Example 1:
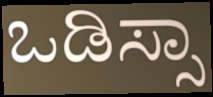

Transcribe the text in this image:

ಒಡಿಸ್ಸಾ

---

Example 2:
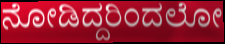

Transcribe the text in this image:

ನೋಡಿದ್ದರಿಂದಲೋ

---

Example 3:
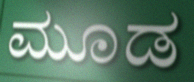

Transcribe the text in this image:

ಮೂಡ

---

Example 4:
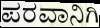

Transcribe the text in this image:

ಪರವಾನಿಗಿ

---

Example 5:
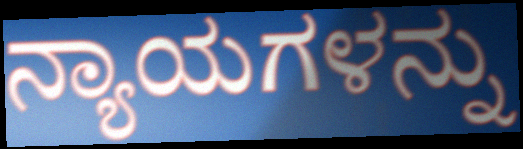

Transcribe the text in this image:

ನ್ಯಾಯಗಳನ್ನು